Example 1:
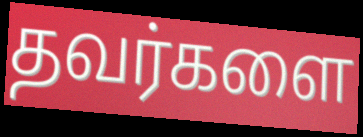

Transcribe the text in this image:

தவர்களை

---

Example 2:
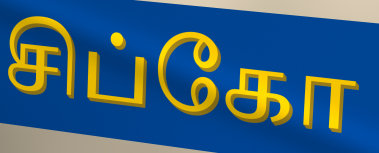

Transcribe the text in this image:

சிப்கோ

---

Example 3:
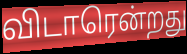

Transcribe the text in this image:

விடாரென்றது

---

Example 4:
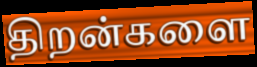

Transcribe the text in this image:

திறன்களை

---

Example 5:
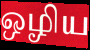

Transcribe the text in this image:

ஒழிய